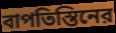
বাপতিস্তিনের